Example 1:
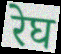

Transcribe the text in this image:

रेघ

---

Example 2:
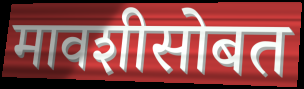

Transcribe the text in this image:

मावशीसोबत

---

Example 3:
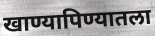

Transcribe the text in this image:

खाण्यापिण्यातला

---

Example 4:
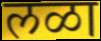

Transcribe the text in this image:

लळा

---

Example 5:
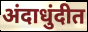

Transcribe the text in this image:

अंदाधुंदीत